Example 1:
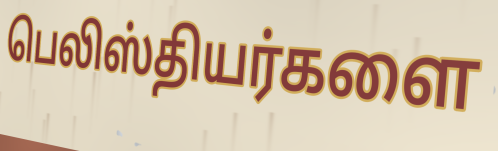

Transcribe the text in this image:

பெலிஸ்தியர்களை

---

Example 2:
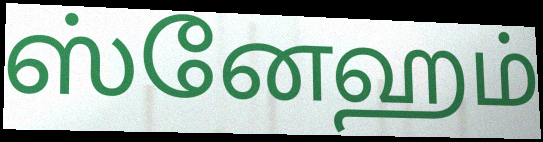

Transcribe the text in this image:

ஸ்னேஹம்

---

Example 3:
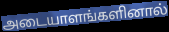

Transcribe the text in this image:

அடையாளங்களினால்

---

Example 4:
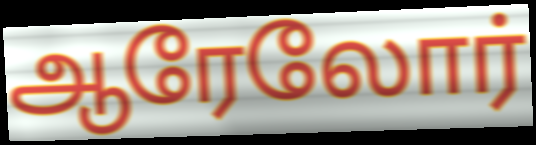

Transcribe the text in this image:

ஆரேலோர்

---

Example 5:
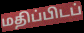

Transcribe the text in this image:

மதிப்பிடப்